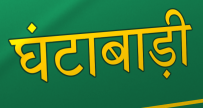
घंटाबाड़ी